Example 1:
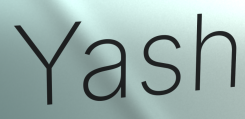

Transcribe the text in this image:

Yash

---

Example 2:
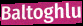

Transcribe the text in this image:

Baltoghlu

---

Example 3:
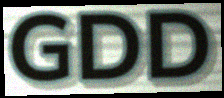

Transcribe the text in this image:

GDD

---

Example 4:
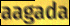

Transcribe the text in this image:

aagada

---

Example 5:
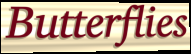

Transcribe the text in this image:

Butterflies